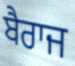
ਬੈਰਾਜ